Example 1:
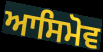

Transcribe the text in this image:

ਆਸਿਮੋਵ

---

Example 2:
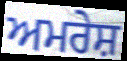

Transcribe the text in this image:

ਅਮਰੇਸ਼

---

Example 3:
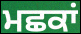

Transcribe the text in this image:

ਮਛਕਾਂ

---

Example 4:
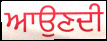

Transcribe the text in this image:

ਆਉਣਦੀ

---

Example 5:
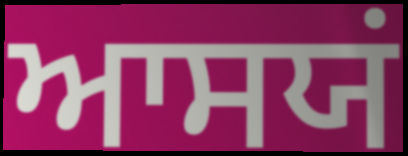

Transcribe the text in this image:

ਆਸਯਂ